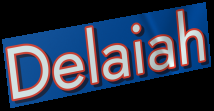
Delaiah